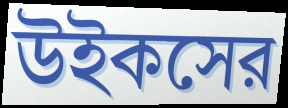
উইকসের